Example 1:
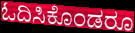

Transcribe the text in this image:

ಓದಿಸಿಕೊಂಡರೂ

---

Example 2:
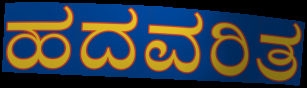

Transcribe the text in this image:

ಹದವರಿತ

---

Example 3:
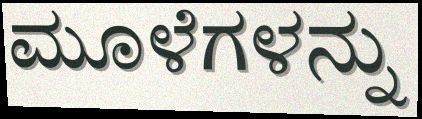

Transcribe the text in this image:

ಮೂಳೆಗಳನ್ನು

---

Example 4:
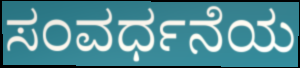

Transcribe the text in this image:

ಸಂವರ್ಧನೆಯ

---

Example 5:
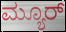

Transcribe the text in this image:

ಮ್ಯೂರ್